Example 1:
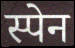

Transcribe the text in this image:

स्पेन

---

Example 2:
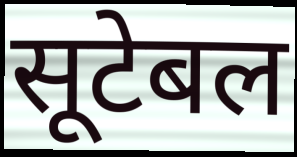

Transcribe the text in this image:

सूटेबल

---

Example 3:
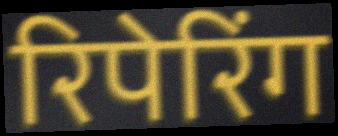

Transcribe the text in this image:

रिपेरिंग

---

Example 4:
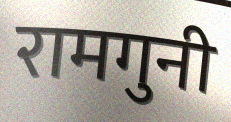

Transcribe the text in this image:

रामगुनी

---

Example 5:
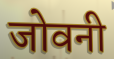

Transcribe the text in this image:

जोवनी